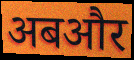
अबऔर